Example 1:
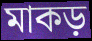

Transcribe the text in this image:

মাকড়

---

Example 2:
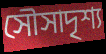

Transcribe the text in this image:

সৌসাদৃশ্য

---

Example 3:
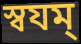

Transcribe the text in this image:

স্বযম্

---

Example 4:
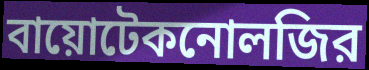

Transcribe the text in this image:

বায়োটেকনোলজির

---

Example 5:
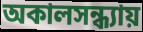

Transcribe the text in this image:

অকালসন্ধ্যায়